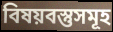
বিষয়বস্তুসমূহ